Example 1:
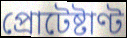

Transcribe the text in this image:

প্রোটেষ্টাণ্ট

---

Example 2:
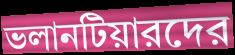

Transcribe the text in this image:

ভলানটিয়ারদের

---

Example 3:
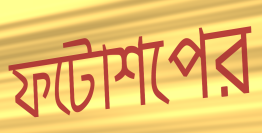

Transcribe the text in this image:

ফটোশপের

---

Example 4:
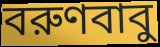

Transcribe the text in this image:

বরুণবাবু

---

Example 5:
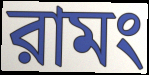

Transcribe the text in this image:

রামং